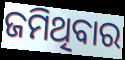
ଜମିଥିବାର